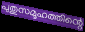
പുതുസമൂഹത്തിന്റെ